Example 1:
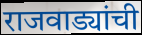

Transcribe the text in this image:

राजवाड्यांची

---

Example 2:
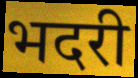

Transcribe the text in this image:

भदरी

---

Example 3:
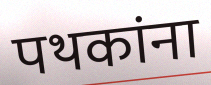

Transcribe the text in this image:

पथकांना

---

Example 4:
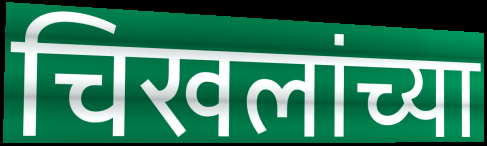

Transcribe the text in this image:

चिखलांच्या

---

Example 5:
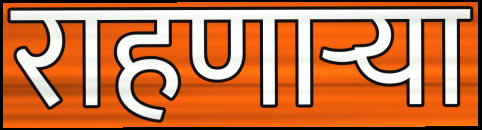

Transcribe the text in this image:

राहणाऱ्या